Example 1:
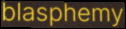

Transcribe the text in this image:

blasphemy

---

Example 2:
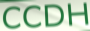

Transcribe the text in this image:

CCDH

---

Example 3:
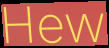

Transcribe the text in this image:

Hew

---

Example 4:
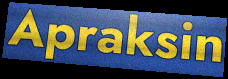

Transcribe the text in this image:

Apraksin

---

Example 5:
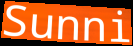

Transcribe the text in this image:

Sunni